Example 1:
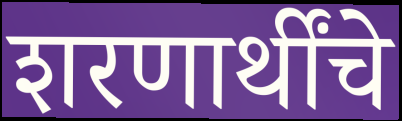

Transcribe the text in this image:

शरणार्थींचे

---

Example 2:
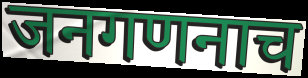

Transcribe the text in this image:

जनगणनाच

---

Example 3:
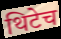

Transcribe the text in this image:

थिटेच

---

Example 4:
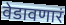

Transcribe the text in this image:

वेडावणारं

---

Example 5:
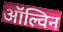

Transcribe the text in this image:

ऑल्विन